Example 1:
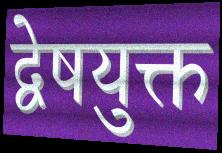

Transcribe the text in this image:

द्वेषयुक्त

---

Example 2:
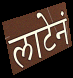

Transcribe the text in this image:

लाटेनं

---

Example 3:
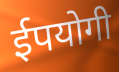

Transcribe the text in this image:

ईपयोगी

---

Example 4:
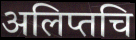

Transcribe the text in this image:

अलिप्तचि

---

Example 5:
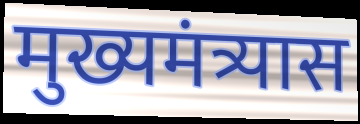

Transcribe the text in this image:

मुख्यमंत्र्यास